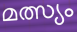
മത്സ്യം